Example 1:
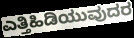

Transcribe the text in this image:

ಎತ್ತಿಹಿಡಿಯುವುದರ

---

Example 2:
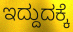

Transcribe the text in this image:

ಇದ್ದುದಕ್ಕೆ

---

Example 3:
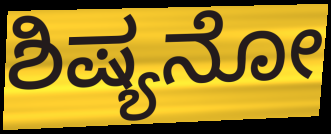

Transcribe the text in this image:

ಶಿಷ್ಯನೋ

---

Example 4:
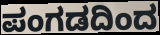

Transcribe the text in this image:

ಪಂಗಡದಿಂದ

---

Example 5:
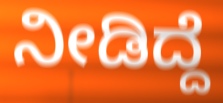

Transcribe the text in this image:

ನೀಡಿದ್ದೆ